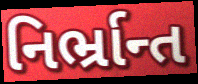
નિર્ભ્રાન્ત